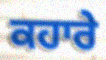
ਕਹਾਰੇ